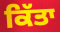
ਕਿੱਤਾ